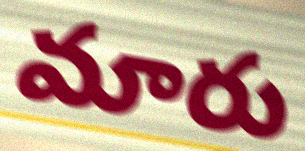
మారు